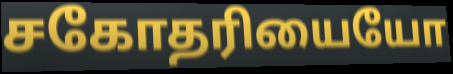
சகோதரியையோ